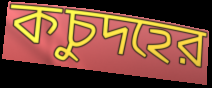
কচুদহের